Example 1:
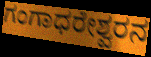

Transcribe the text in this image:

ಗಂಗಾಧರೇಶ್ವರನ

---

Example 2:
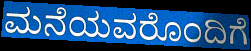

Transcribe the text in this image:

ಮನೆಯವರೊಂದಿಗೆ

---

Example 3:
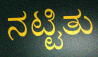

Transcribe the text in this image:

ನಟ್ಟಿತು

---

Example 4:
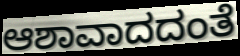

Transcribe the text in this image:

ಆಶಾವಾದದಂತೆ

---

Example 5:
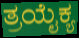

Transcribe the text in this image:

ತ್ರಯೈಕ್ಯ